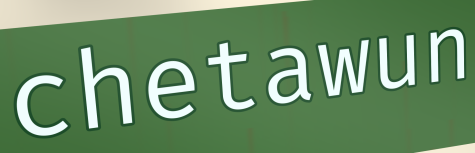
chetawun